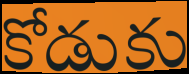
కోడుకు